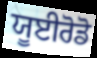
ਯੂਈਰੋਡੋ